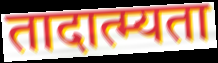
तादात्म्यता